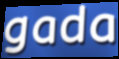
gada